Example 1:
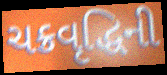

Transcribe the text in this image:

ચક્રવૃદ્ધિની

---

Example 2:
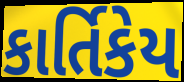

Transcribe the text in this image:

કાર્તિકેય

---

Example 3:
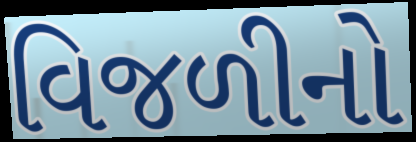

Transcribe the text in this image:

વિજળીનો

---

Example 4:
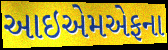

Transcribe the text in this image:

આઇએમએફના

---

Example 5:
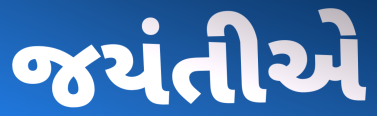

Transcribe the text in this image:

જયંતીએ